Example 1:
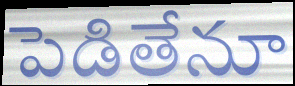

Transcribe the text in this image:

పెడితేనూ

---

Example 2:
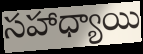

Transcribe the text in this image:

సహాధ్యాయి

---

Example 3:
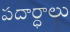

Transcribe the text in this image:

పదార్ధాలు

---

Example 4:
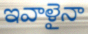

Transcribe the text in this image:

ఇవాళైనా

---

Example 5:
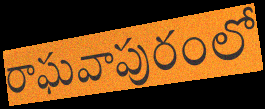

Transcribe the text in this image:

రాఘవాపురంలో